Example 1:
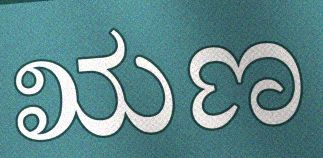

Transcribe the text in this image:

ಋಣ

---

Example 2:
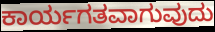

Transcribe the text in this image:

ಕಾರ್ಯಗತವಾಗುವುದು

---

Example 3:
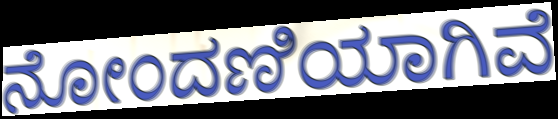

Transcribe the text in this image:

ನೋಂದಣಿಯಾಗಿವೆ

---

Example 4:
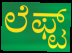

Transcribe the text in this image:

ಲೆಫ್ಟ್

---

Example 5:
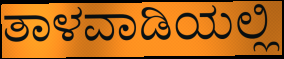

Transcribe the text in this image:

ತಾಳವಾಡಿಯಲ್ಲಿ